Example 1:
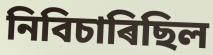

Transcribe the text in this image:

নিবিচাৰিছিল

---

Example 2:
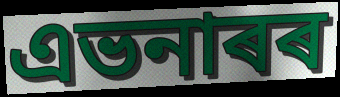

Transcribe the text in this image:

এভনাৰৰ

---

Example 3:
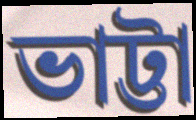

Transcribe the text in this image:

ভাট্টা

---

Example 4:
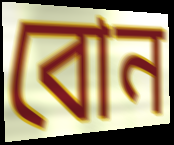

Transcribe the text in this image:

বোন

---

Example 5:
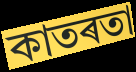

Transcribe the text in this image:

কাতৰতা